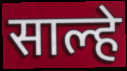
साल्हे